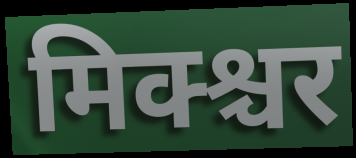
मिक्श्चर